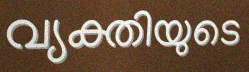
വ്യക്തിയുടെ